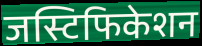
जस्टिफिकेशन